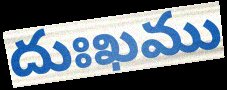
దుఃఖము